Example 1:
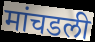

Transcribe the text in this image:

मांचडली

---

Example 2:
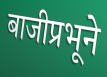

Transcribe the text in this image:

बाजीप्रभूने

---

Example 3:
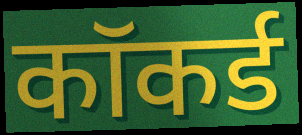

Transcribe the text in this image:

कॉकर्ड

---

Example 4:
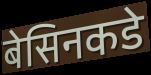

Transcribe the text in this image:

बेसिनकडे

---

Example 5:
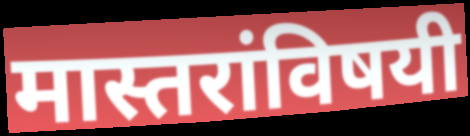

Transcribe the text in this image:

मास्तरांविषयी